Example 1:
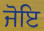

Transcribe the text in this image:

ਜੋਇ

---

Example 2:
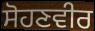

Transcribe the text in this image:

ਸੋਹਣਵੀਰ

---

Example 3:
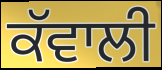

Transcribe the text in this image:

ਕੱਵਾਲੀ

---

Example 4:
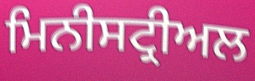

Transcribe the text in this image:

ਮਿਨੀਸਟ੍ਰੀਅਲ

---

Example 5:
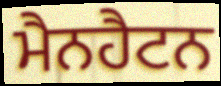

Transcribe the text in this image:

ਮੈਨਹੈਟਨ